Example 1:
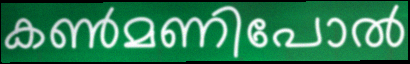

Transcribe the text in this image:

കൺമണിപോൽ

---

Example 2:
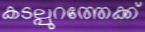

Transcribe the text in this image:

കടല്പുറത്തേക്ക്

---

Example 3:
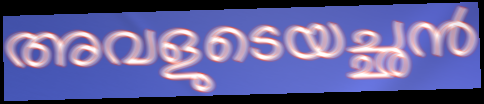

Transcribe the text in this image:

അവളുടെയച്ഛൻ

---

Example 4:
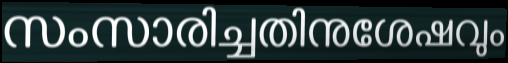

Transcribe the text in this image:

സംസാരിച്ചതിനുശേഷവും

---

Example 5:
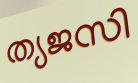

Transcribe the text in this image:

ത്യജസി